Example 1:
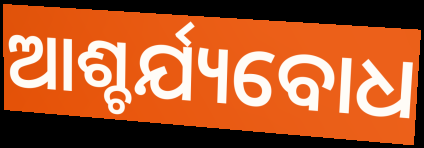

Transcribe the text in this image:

ଆଶ୍ଚର୍ଯ୍ୟବୋଧ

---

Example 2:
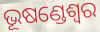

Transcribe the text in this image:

ଭୂଷଣ୍ଡେଶ୍ଵର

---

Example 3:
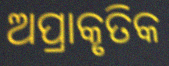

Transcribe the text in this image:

ଅପ୍ରାକୃତିକ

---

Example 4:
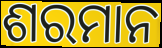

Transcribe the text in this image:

ଶରମାନ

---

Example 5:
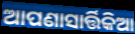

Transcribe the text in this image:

ଆପଣାସାର୍ତ୍ତିକିଆ